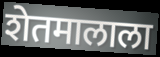
शेतमालाला